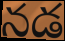
నడ